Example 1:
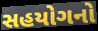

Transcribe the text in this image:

સહયોગનો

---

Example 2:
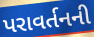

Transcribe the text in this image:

પરાવર્તનની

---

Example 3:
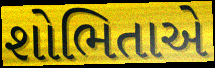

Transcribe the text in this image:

શોભિતાએ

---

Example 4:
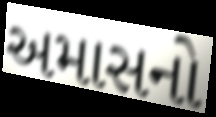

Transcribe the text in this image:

અમાસનો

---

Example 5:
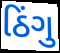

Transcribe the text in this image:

ઠિંગુ